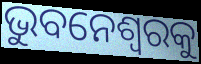
ଭୁବନେଶ୍ୱରକୁ